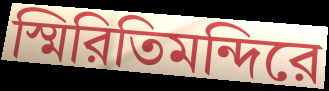
স্মিরিতিমন্দিরে